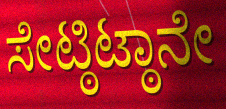
ಸೇಟ್ಠಿಟ್ಠಾನೇ